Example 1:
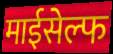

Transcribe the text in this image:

माईसेल्फ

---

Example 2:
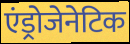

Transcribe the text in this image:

एंड्रोजेनेटिक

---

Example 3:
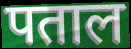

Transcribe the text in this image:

पताल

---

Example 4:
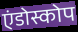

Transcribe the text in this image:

एंडोस्कोप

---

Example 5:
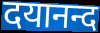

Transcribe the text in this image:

दयानन्द